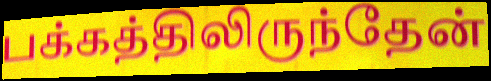
பக்கத்திலிருந்தேன்